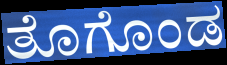
ತೊಗೊಂಡ